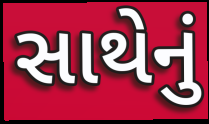
સાથેનું